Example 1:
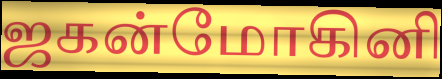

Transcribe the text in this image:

ஜகன்மோகினி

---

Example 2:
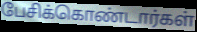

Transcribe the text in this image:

பேசிக்கொண்டார்கள்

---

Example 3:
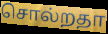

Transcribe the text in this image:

சொல்றதா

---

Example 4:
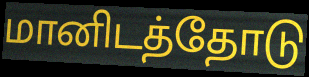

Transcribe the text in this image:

மானிடத்தோடு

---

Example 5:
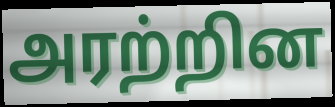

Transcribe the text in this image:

அரற்றின